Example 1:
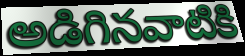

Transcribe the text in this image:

అడిగినవాటికి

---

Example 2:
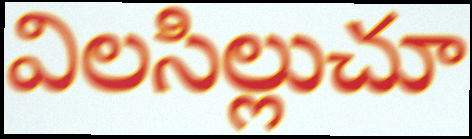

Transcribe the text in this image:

విలసిల్లుచూ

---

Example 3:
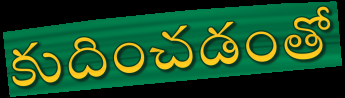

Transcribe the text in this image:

కుదించడంతో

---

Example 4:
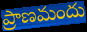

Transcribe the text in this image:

ప్రాణమందు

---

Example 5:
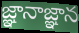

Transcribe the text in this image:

జ్ఞానాజ్ఞాన